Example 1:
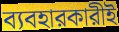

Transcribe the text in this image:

ব্যবহারকারীই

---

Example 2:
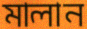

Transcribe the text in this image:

মালান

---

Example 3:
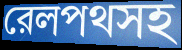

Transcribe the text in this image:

রেলপথসহ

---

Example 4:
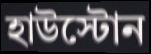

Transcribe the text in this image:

হাউস্টোন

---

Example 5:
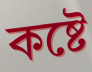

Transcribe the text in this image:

কষ্টে